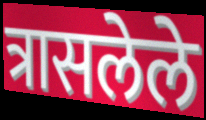
त्रासलेले